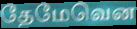
தேமேவென